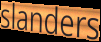
slanders